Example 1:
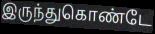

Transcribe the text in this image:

இருந்துகொண்டே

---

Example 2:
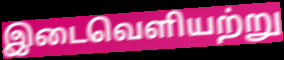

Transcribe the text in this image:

இடைவெளியற்று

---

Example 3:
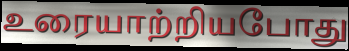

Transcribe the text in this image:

உரையாற்றியபோது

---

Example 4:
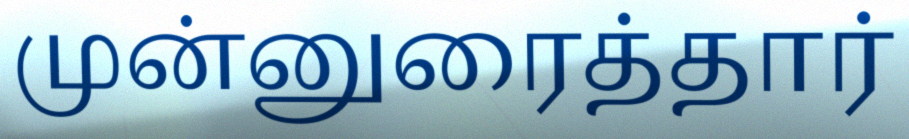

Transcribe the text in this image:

முன்னுரைத்தார்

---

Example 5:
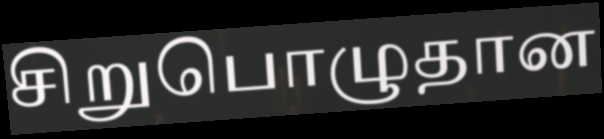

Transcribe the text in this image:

சிறுபொழுதான